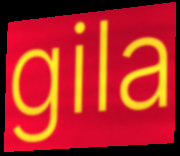
gila